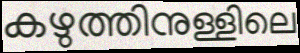
കഴുത്തിനുള്ളിലെ